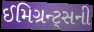
ઈમિગ્રન્ટ્સની